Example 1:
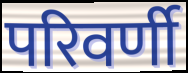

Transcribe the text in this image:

परिवर्णी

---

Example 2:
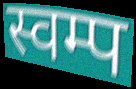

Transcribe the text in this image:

स्वम्प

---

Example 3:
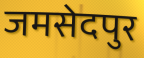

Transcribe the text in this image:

जमसेदपुर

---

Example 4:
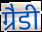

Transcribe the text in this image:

ग्रैडी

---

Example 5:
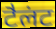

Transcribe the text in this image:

टैलंट